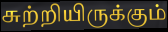
சுற்றியிருக்கும்